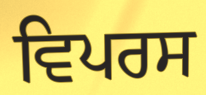
ਵਿਪਰਸ